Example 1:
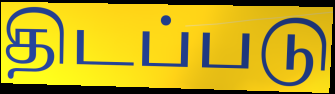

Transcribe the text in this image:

திடப்படு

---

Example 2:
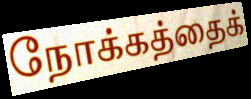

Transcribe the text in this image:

நோக்கத்தைக்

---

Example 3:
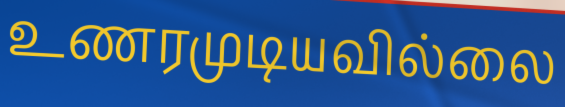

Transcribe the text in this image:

உணரமுடியவில்லை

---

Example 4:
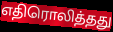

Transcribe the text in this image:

எதிரொலித்தது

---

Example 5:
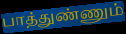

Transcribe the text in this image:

பாத்துண்ணும்